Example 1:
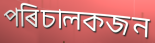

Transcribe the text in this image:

পৰিচালকজন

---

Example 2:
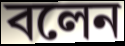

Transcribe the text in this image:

বলেন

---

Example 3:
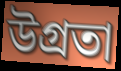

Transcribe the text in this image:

উগ্ৰতা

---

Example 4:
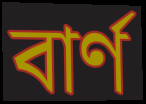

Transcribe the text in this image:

বাৰ্ণ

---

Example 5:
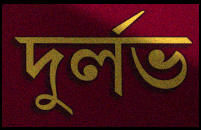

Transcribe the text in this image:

দুৰ্লভ